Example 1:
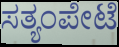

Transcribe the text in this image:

ಸತ್ಯಂಪೇಟೆ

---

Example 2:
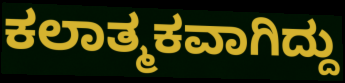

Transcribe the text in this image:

ಕಲಾತ್ಮಕವಾಗಿದ್ದು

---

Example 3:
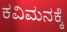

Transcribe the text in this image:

ಕವಿಮನಕ್ಕೆ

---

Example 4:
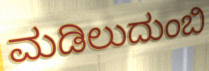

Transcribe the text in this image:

ಮಡಿಲುದುಂಬಿ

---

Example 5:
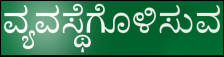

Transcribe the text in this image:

ವ್ಯವಸ್ಥೆಗೊಳಿಸುವ